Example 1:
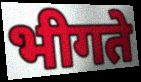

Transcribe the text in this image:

भीगते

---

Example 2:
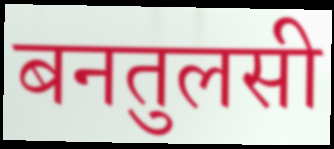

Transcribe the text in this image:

बनतुलसी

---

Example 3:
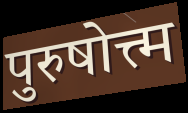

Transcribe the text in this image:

पुरुषोत्त्म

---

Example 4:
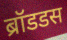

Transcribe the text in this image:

ब्रॉडडस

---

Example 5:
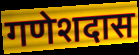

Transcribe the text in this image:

गणेशदास